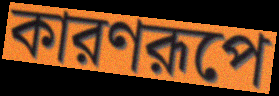
কারণরূপে